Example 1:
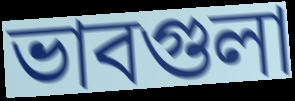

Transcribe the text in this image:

ভাবগুলা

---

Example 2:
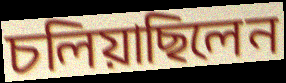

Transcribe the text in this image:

চলিয়াছিলেন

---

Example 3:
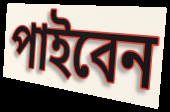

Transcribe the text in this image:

পাইবেন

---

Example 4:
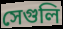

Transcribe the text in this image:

সেগুলি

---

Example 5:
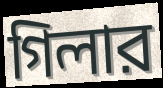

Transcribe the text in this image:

গিলার